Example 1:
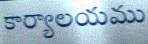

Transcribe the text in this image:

కార్యాలయము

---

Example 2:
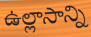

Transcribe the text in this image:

ఉల్లాసాన్ని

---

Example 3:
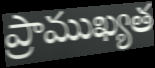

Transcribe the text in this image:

ప్రాముఖ్యత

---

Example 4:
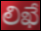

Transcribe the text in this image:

లిఖే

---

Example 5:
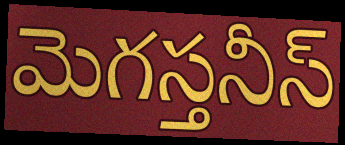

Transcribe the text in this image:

మెగస్తనీస్